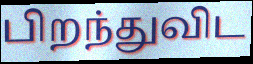
பிறந்துவிட